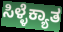
ಸಿಳ್ಳೆಕ್ಯಾತ